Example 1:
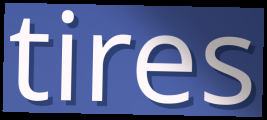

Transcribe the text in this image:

tires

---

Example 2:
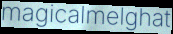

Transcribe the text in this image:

magicalmelghat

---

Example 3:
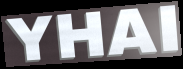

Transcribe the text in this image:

YHAI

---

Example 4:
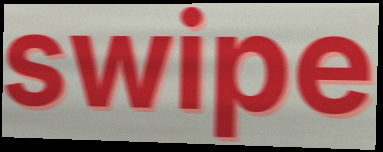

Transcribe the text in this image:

swipe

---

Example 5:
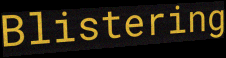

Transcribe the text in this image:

Blistering